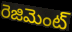
రెజిమెంట్